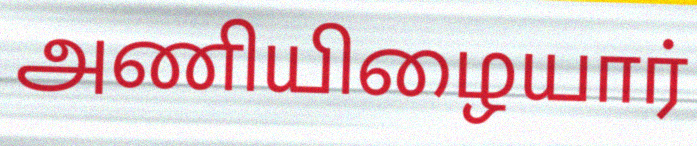
அணியிழையார்